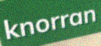
knorran